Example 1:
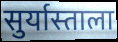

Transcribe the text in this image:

सुर्यास्ताला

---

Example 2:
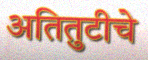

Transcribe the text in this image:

अतितुटीचे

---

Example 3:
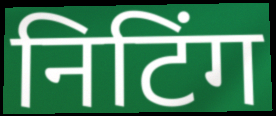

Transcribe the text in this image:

निटिंग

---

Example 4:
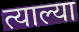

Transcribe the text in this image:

त्याल्या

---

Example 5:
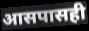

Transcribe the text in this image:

आसपासही